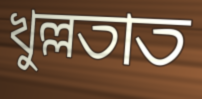
খুল্লতাত